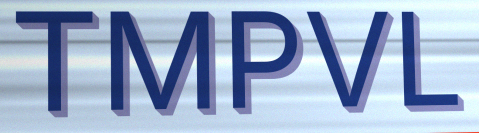
TMPVL